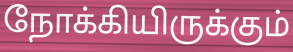
நோக்கியிருக்கும்